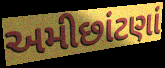
અમીછાંટણાં